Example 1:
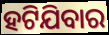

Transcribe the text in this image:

ହଟିଯିବାର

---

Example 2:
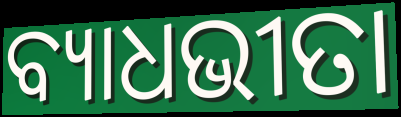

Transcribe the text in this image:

ବ୍ୟାଧଭୀତା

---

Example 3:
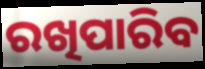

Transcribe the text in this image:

ରଖିପାରିବ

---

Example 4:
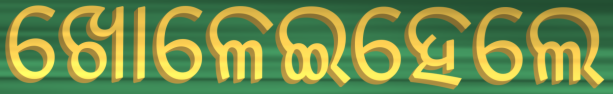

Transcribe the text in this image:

ଖୋଳେଇହେଲେ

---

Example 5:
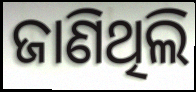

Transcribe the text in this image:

ଜାଣିଥିଲି